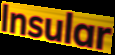
Insular